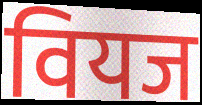
वियज